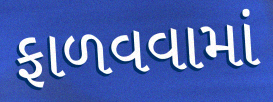
ફાળવવામાં